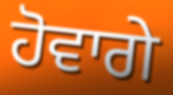
ਹੋਵਾਗੇ